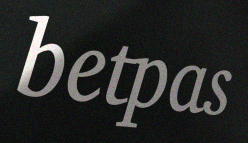
betpas